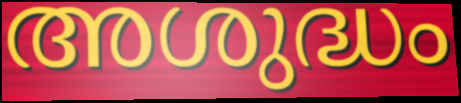
അശുദ്ധം